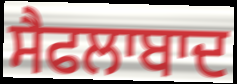
ਸੈਫਲਾਬਾਦ